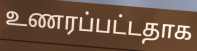
உணரப்பட்டதாக